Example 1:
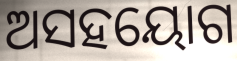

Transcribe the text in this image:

ଅସହୟୋଗ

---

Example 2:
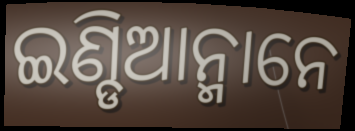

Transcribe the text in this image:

ଇଣ୍ଡିଆନ୍ମାନେ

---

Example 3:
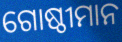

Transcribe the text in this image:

ଗୋଷ୍ଠୀମାନ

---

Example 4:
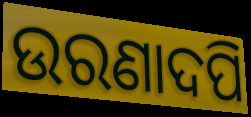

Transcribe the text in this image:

ଉରଣାଦପି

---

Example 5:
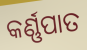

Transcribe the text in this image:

କର୍ଣ୍ଣପାତ